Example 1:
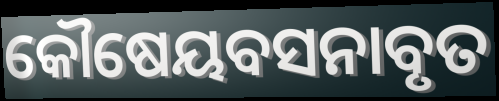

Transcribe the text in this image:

କୌଷେୟବସନାବୃତ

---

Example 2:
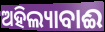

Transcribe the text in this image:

ଅହିଲ୍ୟାବାଈ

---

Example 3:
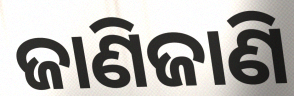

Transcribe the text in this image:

ଜାଣିଜାଣି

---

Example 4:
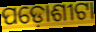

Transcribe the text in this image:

ପଡ଼ୋଶୀଟା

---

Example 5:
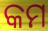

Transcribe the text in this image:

କମ